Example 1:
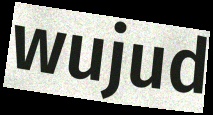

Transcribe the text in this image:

wujud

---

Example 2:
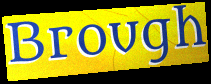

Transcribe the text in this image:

Brough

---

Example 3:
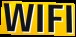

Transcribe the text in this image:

WIFI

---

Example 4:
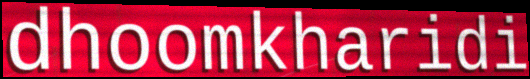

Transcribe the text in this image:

dhoomkharidi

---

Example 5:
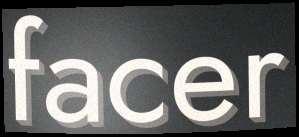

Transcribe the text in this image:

facer